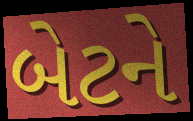
બેટને